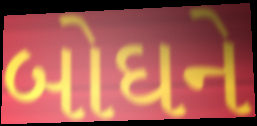
બોઘને